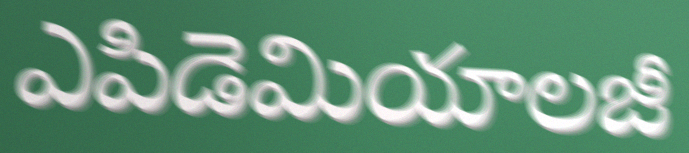
ఎపిడెమియాలజీ